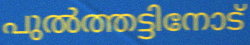
പുൽത്തട്ടിനോട്